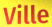
Ville